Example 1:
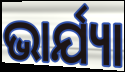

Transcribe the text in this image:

ଭାର୍ଯ୍ୟା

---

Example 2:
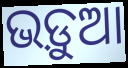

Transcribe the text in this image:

ଭଡ଼ୁଆ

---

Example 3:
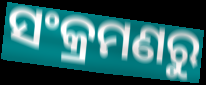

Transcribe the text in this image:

ସଂକ୍ରମଣରୁ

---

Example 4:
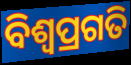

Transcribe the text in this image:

ବିଶ୍ବପ୍ରଗତି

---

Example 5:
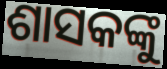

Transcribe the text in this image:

ଶାସକଙ୍କୁ